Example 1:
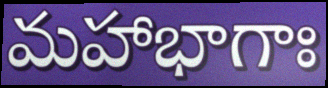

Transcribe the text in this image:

మహాభాగాః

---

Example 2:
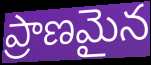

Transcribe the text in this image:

ప్రాణమైన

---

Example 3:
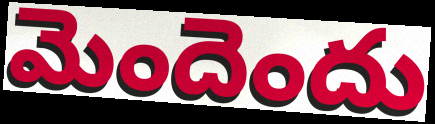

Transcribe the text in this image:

మెందెందు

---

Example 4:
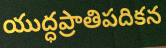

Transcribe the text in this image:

యుద్ధప్రాతిపదికన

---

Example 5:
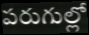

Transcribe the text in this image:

పరుగుల్లో